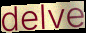
delve